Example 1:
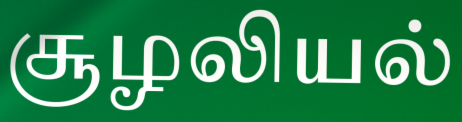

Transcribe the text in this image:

சூழலியல்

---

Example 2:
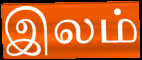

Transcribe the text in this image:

இலம்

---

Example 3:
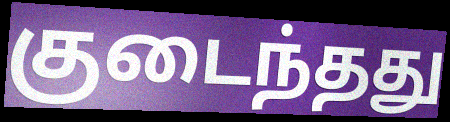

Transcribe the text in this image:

குடைந்தது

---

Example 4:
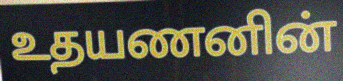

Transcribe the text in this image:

உதயணனின்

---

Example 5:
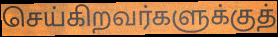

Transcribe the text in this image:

செய்கிறவர்களுக்குத்